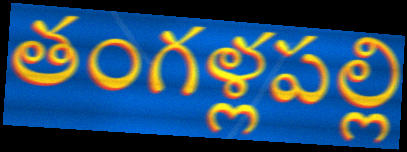
తంగళ్లపల్లి